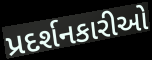
પ્રદર્શનકારીઓ